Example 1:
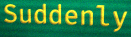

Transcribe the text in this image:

Suddenly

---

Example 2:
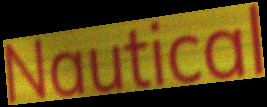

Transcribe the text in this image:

Nautical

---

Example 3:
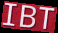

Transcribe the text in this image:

IBT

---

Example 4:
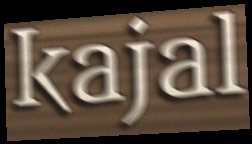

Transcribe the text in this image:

kajal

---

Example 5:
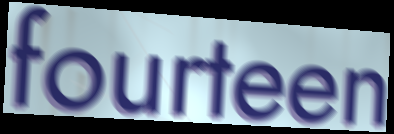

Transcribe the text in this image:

fourteen